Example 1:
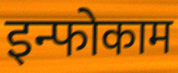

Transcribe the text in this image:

इन्फोकाम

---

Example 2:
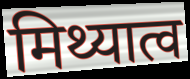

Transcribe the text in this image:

मिथ्यात्व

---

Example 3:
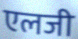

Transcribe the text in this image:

एलजी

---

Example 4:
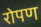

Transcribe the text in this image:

रोपण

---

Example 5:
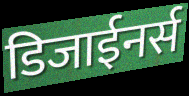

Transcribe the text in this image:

डिजाईनर्स